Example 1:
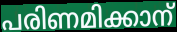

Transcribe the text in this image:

പരിണമിക്കാന്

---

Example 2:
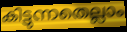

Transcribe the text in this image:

കിട്ടുന്നതെല്ലാം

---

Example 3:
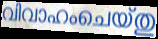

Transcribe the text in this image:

വിവാഹംചെയ്തു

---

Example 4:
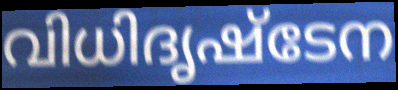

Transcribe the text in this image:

വിധിദൃഷ്ടേന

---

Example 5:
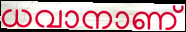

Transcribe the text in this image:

ധവാനാണ്